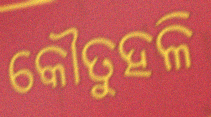
କୌତୁହଳି